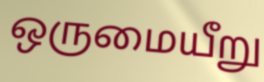
ஒருமையீறு